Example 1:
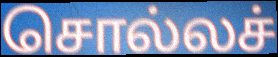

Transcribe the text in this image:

சொல்லச்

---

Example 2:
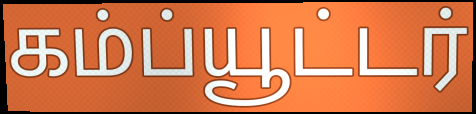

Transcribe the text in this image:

கம்ப்யூட்டர்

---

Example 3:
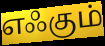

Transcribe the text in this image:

எஃகும்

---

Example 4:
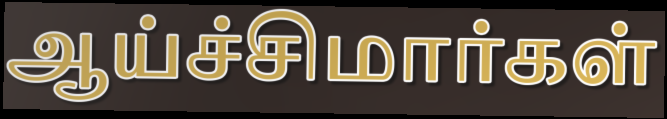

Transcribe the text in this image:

ஆய்ச்சிமார்கள்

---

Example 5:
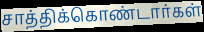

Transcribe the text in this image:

சாத்திக்கொண்டார்கள்